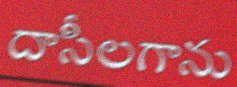
దాసీలగాను